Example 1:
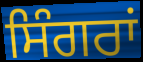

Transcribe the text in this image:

ਸਿੰਗਰਾਂ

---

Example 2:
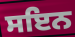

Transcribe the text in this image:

ਸਇਨ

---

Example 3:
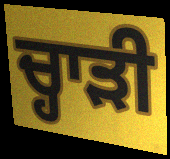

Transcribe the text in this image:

ਚ੍ਹਾੜੀ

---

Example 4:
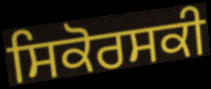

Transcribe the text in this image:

ਸਿਕੋਰਸਕੀ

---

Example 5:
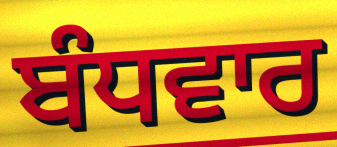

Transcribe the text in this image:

ਬੰਧਵਾਰ